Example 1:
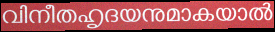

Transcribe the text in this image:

വിനീതഹൃദയനുമാകയാൽ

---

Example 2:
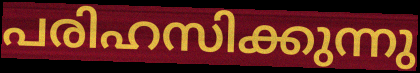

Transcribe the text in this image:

പരിഹസിക്കുന്നു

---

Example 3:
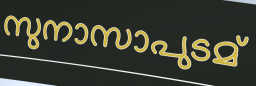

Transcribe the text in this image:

സുനാസാപുടമ്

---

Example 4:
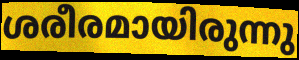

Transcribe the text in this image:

ശരീരമായിരുന്നു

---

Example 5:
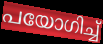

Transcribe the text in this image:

പയോഗിച്ച്